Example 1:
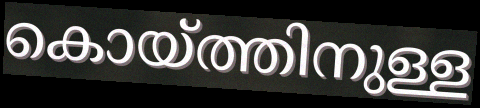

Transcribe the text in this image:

കൊയ്ത്തിനുള്ള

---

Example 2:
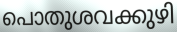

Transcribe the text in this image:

പൊതുശവക്കുഴി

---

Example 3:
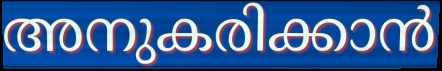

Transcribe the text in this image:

അനുകരിക്കാൻ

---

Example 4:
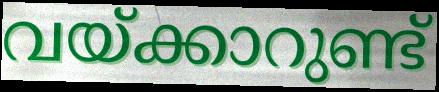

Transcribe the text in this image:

വയ്ക്കാറുണ്ട്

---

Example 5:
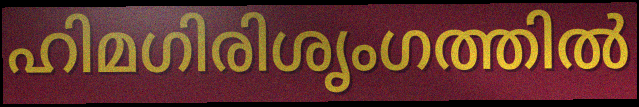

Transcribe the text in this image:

ഹിമഗിരിശൃംഗത്തിൽ